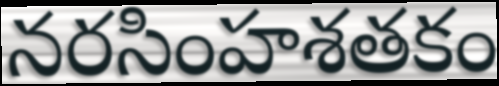
నరసింహశతకం